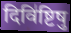
दिवि॑ष्टिषु